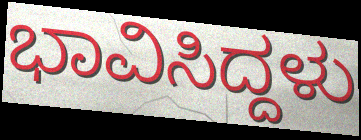
ಭಾವಿಸಿದ್ದಳು